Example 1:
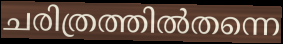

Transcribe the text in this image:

ചരിത്രത്തിൽതന്നെ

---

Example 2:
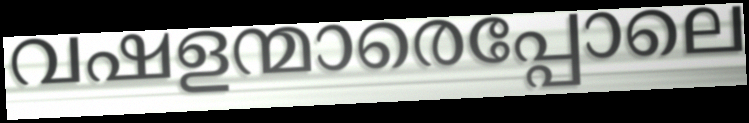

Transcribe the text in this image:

വഷളന്മാരെപ്പോലെ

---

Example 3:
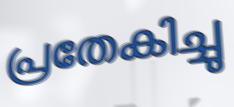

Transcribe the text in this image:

പ്രതേകിച്ചു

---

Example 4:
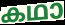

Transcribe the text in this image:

കഥാ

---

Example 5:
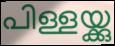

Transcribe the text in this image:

പിള്ളയ്ക്കു